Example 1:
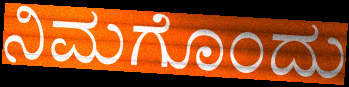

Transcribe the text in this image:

ನಿಮಗೊಂದು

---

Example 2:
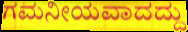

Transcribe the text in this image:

ಗಮನೀಯವಾದದ್ದು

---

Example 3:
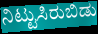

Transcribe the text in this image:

ನಿಟ್ಟುಸಿರುಬಿಡು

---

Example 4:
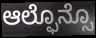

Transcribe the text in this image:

ಆಲ್ಫೊನ್ಸೊ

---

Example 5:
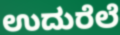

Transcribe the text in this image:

ಉದುರೆಲೆ